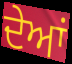
ਦੇਆਂ